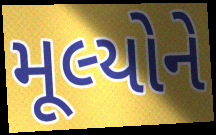
મૂલ્યોને